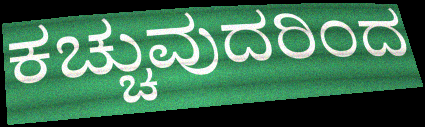
ಕಚ್ಚುವುದರಿಂದ